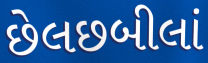
છેલછબીલાં